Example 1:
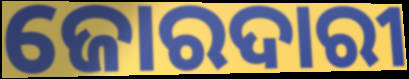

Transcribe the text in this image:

ଜୋରଦାରୀ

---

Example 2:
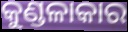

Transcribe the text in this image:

କୁଣ୍ଡଳାକାର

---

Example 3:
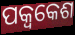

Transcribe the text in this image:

ପକ୍ଵକେଶ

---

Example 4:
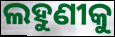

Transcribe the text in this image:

ଲହୁଣୀକୁ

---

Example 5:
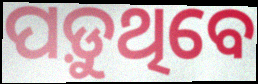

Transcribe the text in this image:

ପଡ଼ୁଥିବେ